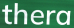
thera